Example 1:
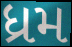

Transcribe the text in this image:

ધ્રમ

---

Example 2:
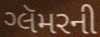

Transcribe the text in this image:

ગ્લૅમરની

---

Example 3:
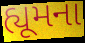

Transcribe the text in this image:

હ્યૂમના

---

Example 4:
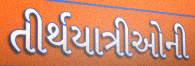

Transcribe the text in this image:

તીર્થયાત્રીઓની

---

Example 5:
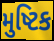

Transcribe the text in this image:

મુષ્ટિક